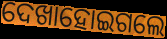
ଦେଖାହୋଇଗଲେ